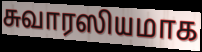
சுவாரஸியமாக